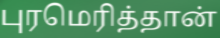
புரமெரித்தான்